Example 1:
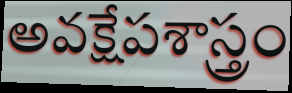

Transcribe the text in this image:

అవక్షేపశాస్త్రం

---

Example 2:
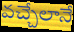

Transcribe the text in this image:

వచ్చేలానే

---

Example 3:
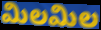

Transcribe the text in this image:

మిలమిల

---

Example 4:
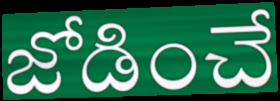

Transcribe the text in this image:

జోడించే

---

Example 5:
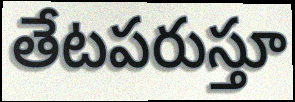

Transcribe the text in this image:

తేటపరుస్తూ